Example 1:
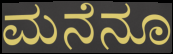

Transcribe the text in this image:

ಮನೆನೂ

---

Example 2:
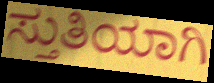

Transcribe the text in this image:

ಸ್ತುತಿಯಾಗಿ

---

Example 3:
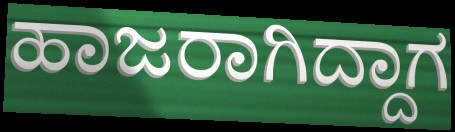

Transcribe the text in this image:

ಹಾಜರಾಗಿದ್ದಾಗ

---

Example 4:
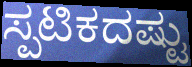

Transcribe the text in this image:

ಸ್ಪಟಿಕದಷ್ಟು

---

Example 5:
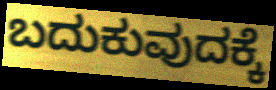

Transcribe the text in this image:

ಬದುಕುವುದಕ್ಕೆ